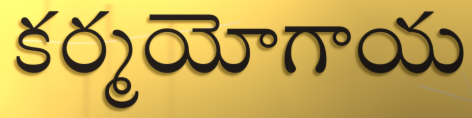
కర్మయోగాయ